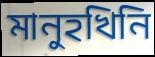
মানুহখিনি